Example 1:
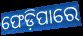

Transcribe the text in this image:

ଫେଡ଼ିପାରେ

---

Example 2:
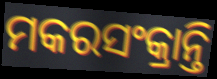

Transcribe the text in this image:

ମକରସଂକ୍ରାନ୍ତି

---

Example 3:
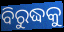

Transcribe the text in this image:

ବିରୁଦ୍ଧକୁ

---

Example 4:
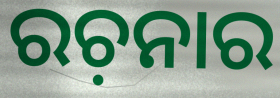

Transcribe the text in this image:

ରଚ଼ନାର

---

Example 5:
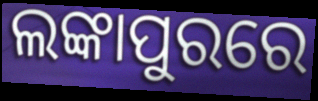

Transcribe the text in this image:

ଲଙ୍କାପୁରରେ